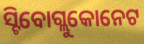
ସ୍ଟିବୋଗ୍ଲୁକୋନେଟ